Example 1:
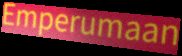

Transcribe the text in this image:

Emperumaan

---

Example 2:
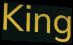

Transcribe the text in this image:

King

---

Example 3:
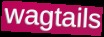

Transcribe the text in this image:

wagtails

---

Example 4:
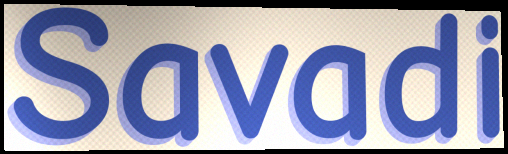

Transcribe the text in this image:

Savadi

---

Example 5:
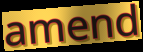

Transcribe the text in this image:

amend